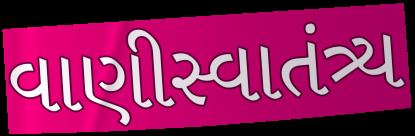
વાણીસ્વાતંત્ર્ય